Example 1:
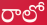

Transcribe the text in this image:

రాలో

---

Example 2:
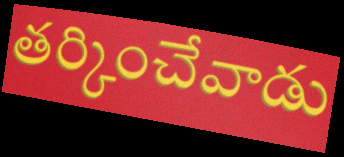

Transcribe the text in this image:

తర్కించేవాడు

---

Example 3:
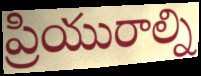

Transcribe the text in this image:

ప్రియురాల్ని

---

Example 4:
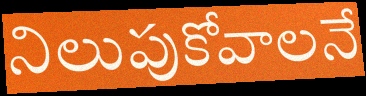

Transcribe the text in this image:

నిలుపుకోవాలనే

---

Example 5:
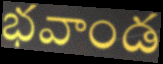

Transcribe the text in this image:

భవాండ